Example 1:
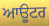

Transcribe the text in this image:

ਆਊਟਰ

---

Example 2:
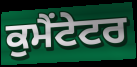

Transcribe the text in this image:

ਕੁਮੈਂਟੇਟਰ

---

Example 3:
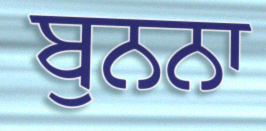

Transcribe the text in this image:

ਬੁਨਨਾ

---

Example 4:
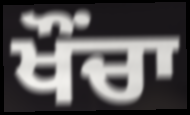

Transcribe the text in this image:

ਖੌੰਚਾ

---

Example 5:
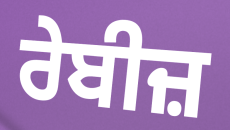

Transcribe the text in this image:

ਰੇਬੀਜ਼